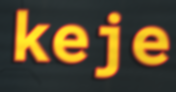
keje